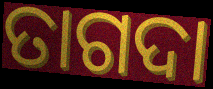
ତାଗଦା